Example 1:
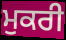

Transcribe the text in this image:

ਮੁਕਰੀ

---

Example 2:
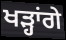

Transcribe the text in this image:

ਖੜ੍ਹਾਂਗੇ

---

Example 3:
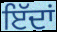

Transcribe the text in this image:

ਇੱਦਾਂ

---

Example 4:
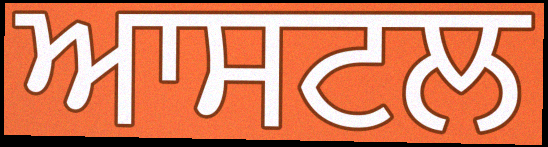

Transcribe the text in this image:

ਆਸਟਲ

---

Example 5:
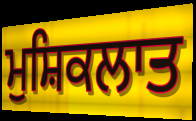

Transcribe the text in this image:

ਮੁਸ਼ਿਕਲਾਤ